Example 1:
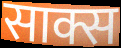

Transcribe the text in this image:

साक्स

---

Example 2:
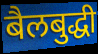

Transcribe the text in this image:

बैलबुद्धी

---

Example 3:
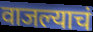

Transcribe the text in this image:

वाजल्याचं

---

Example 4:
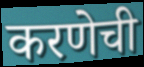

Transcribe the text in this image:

करणेची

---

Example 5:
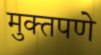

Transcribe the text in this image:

मुक्तपणे